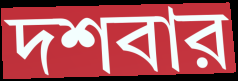
দশবার